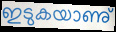
ഇടുകയാണു്